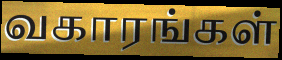
வகாரங்கள்